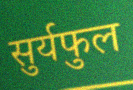
सुर्यफुल